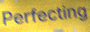
Perfecting